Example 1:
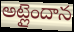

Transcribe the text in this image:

అట్లైందాన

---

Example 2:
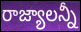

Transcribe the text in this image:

రాజ్యాలన్నీ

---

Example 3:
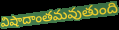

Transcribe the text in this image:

విషాదాంతమవుతుంది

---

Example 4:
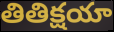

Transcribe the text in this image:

తితిక్షయా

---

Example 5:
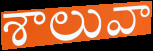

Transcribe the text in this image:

శాలువా